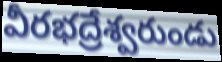
వీరభద్రేశ్వరుండు